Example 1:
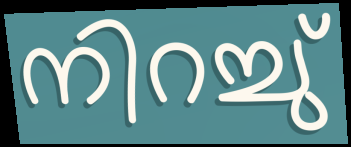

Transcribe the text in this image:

നിറച്ചു്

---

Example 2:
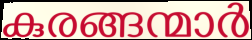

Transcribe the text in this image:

കുരങ്ങന്മാർ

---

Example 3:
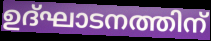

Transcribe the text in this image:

ഉദ്ഘാടനത്തിന്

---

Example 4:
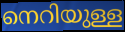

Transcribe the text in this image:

നെറിയുള്ള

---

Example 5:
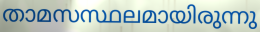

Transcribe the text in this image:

താമസസ്ഥലമായിരുന്നു